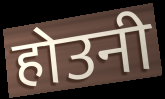
होउनी